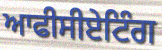
ਆਫੀਸੀਏਟਿੰਗ